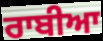
ਰਾਬੀਆ